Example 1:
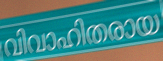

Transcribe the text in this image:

വിവാഹിതരായ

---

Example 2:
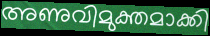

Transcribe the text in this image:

അണുവിമുക്തമാക്കി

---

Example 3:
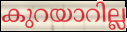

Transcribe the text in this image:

കുറയാറില്ല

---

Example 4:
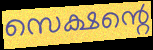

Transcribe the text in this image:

സെക്ഷന്റെ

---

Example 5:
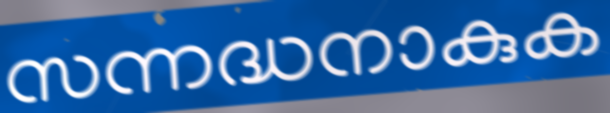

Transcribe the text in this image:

സന്നദ്ധനാകുക